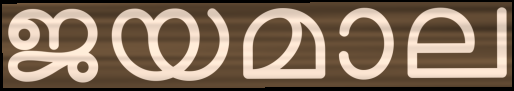
ജയമാല